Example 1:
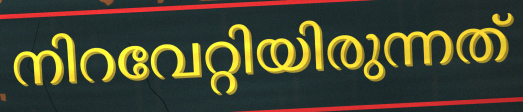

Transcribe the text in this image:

നിറവേറ്റിയിരുന്നത്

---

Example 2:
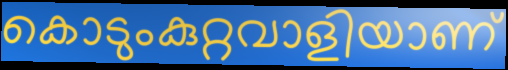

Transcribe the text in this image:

കൊടുംകുറ്റവാളിയാണ്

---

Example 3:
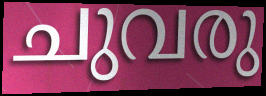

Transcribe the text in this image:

ചുവരു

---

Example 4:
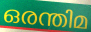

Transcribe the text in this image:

ഒരന്തിമ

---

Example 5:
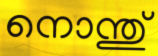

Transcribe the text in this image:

നൊന്തു്